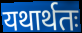
यथार्थतः